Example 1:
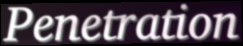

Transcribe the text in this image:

Penetration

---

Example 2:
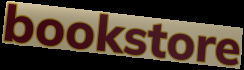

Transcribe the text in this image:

bookstore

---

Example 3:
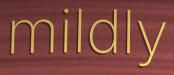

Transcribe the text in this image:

mildly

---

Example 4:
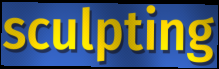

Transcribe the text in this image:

sculpting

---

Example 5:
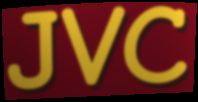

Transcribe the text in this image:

JVC